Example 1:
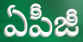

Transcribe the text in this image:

ఏపీజీ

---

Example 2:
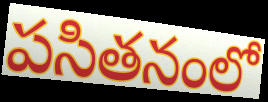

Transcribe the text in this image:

పసితనంలో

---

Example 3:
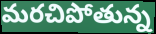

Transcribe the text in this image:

మరచిపోతున్న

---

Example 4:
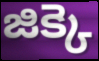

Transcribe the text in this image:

జిక్కె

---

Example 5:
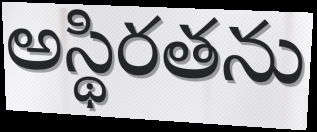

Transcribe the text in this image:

అస్థిరతను